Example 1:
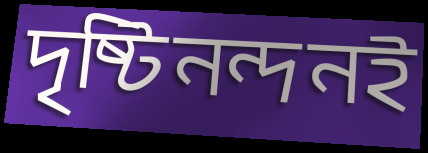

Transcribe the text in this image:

দৃষ্টিনন্দনই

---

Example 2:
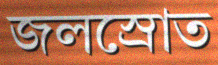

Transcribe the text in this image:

জলস্রোত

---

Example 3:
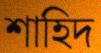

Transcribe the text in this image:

শাহিদ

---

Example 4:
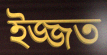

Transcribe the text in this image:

ইজ্জত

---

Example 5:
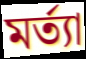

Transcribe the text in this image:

মর্ত্যা